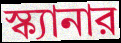
স্ক্যানার